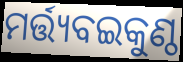
ମର୍ତ୍ତ୍ୟବଇକୁଣ୍ଠ